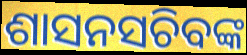
ଶାସନସଚିବଙ୍କ